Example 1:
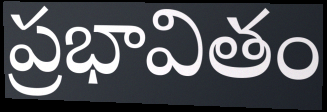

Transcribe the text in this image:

ప్రభావితం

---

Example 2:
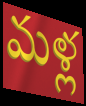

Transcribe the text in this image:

మళ్ల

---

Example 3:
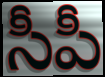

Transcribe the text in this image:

సీపీ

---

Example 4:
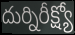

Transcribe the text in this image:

దుర్నిరీక్ష్యో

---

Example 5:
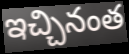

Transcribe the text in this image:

ఇచ్చినంత